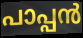
പാപ്പൻ